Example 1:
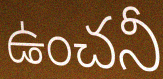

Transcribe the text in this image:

ఉంచనీ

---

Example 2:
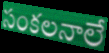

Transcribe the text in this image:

సంకలనాలే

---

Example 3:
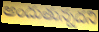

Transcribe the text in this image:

అందుతున్నదని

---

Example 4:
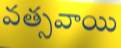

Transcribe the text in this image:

వత్సవాయి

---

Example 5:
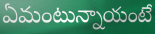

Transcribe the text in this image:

ఏమంటున్నాయంటే